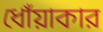
ধোঁয়াকার